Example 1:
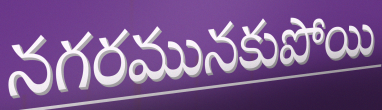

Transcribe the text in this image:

నగరమునకుపోయి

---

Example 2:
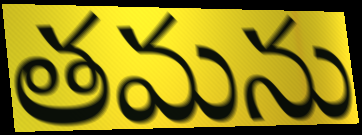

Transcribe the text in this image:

తమను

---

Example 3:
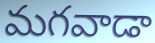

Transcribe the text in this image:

మగవాడా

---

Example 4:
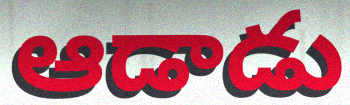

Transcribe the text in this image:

ఆడాడు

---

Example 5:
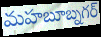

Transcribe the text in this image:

మహబూబ్నగర్